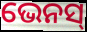
ଭେନସ୍